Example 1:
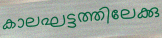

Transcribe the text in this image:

കാലഘട്ടത്തിലേക്കു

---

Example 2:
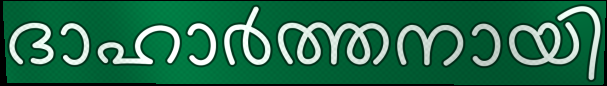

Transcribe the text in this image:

ദാഹാർത്തനായി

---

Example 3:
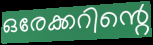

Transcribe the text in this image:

ഒരേക്കറിന്റെ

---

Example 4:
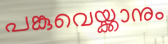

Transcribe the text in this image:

പങ്കുവെയ്ക്കാനും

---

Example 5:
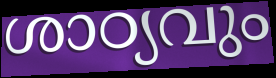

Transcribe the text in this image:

ശാഠ്യവും